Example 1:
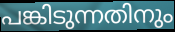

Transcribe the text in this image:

പങ്കിടുന്നതിനും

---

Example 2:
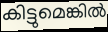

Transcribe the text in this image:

കിട്ടുമെങ്കിൽ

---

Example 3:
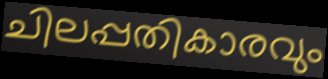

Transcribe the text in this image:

ചിലപ്പതികാരവും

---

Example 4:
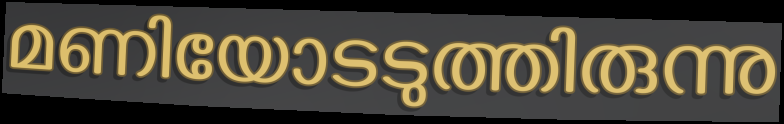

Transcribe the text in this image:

മണിയോടടുത്തിരുന്നു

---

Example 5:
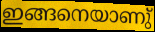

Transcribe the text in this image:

ഇങ്ങനെയാണു്